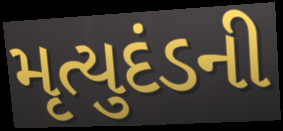
મૃત્યુદંડની